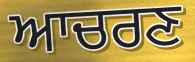
ਆਚਰਣ